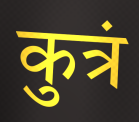
कुत्रं